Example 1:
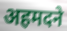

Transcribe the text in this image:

अहमदने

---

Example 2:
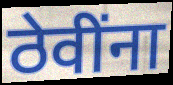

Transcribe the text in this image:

ठेवींना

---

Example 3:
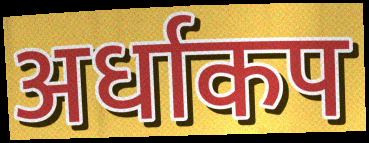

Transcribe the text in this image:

अर्धाकप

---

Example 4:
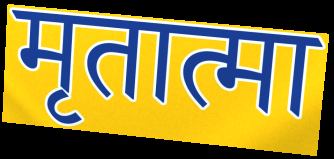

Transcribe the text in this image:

मृतात्मा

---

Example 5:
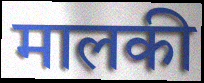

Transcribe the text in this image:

मालकी